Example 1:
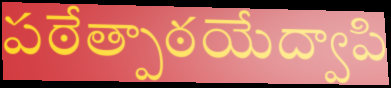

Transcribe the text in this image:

పఠేత్పాఠయేద్వాపి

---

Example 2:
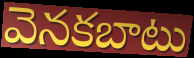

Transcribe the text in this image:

వెనకబాటు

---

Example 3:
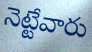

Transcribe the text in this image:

నెట్టేవారు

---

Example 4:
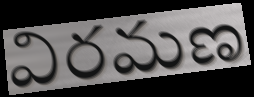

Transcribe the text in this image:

విరమణ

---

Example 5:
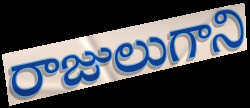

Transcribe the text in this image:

రాజులుగాని